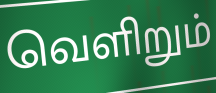
வெளிறும்